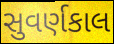
સુવર્ણકાલ